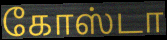
கோஸ்டா